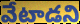
వేటాడని